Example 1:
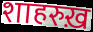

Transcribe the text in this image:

शाहरुख़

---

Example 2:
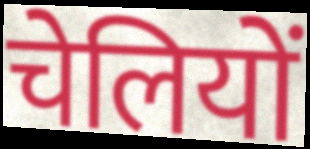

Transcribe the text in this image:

चेलियों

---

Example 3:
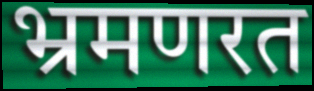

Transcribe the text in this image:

भ्रमणरत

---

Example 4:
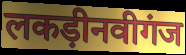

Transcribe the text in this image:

लकड़ीनवीगंज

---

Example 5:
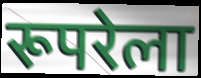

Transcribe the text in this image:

रूपरेला